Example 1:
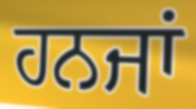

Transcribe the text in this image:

ਹਨਜਾਂ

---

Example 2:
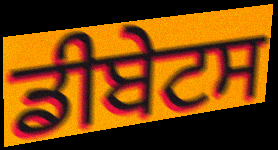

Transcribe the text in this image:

ਡੀਬੇਟਸ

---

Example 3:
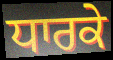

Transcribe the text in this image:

ਧਾਰਕੇ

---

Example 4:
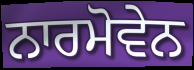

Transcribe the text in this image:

ਨਾਰਮੋਵੇਨ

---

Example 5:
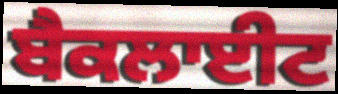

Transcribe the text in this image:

ਬੈਕਲਾਈਟ